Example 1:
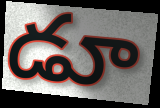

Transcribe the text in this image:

డూ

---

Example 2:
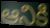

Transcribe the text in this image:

ఆనికి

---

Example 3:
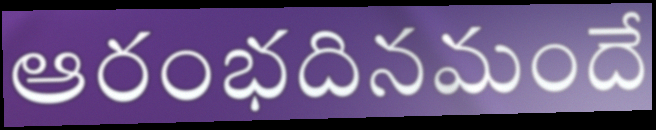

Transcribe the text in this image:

ఆరంభదినమందే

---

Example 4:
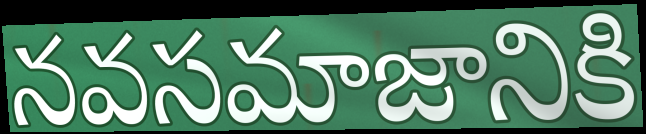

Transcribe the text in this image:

నవసమాజానికి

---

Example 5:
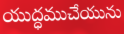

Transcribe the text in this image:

యుద్ధముచేయును